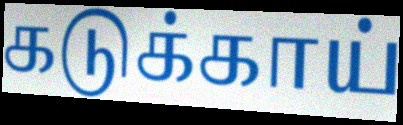
கடுக்காய்